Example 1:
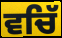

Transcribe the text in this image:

ਵਚਿੱ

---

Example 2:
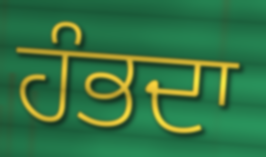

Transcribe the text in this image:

ਹੰਭਦਾ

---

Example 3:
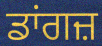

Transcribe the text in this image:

ਡਾਂਗਜ਼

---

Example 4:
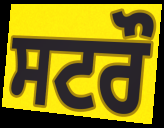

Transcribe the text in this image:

ਸਟਰੌ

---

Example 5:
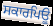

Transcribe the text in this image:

ਸਕਾਰਪਿਊ